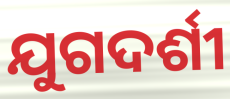
ଯୁଗଦର୍ଶୀ